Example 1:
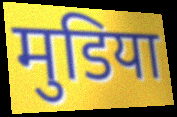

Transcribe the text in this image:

मुडिया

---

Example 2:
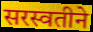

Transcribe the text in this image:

सरस्वतीने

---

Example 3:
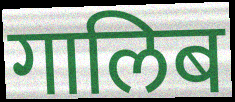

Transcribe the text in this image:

गालिब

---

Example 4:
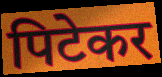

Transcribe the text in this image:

पिटेकर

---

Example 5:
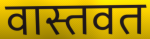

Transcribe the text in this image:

वास्‍तवत